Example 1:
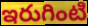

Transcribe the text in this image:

ఇరుగింటి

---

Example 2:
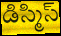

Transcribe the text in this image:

డిస్మిస్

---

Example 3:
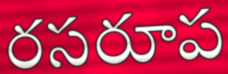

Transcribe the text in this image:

రసరూప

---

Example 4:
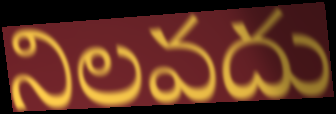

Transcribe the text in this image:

నిలవదు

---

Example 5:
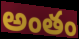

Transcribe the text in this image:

అంతం